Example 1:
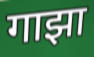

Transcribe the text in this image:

गाझा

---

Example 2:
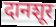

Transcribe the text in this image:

दानशूर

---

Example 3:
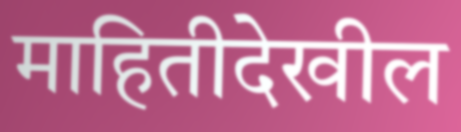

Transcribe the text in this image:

माहितीदेखील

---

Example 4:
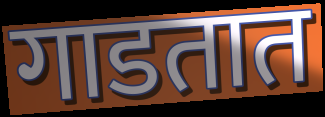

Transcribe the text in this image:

गाडतात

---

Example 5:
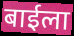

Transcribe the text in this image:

बाईला